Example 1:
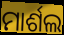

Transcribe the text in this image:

ମାର୍ଶଲ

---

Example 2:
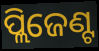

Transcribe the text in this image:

ପ୍ଲିଜେଣ୍ଟ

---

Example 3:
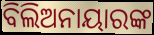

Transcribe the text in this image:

ବିଲିଅନାୟାରଙ୍କ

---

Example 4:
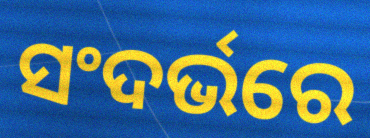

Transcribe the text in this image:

ସଂଦର୍ଭରେ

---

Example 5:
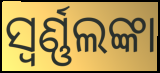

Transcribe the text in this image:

ସ୍ବର୍ଣ୍ଣଲଙ୍କା